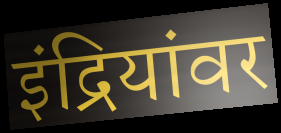
इंद्रियांवर